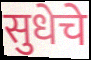
सुधेचे